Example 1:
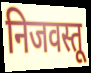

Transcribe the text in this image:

निजवस्तू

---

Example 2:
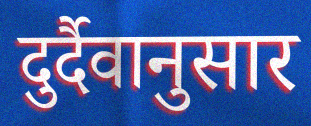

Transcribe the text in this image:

दुर्दैवानुसार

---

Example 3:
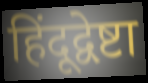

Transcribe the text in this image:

हिंदूद्वेष्टा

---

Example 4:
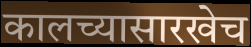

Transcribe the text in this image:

कालच्यासारखेच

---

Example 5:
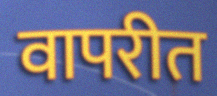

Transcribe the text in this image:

वापरीत